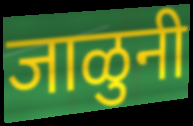
जाळुनी